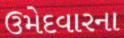
ઉમેદવારના